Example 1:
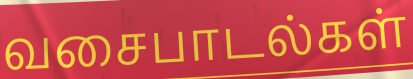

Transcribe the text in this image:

வசைபாடல்கள்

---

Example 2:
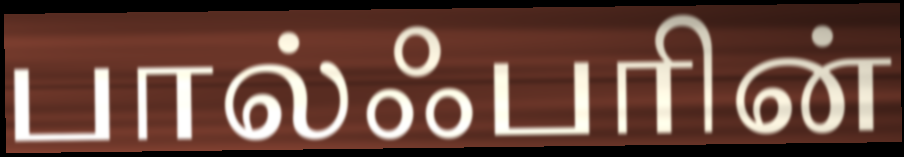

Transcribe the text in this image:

பால்ஃபரின்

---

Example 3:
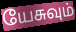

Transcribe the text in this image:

யேசுவும்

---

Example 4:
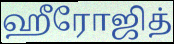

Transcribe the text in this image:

ஹீரோஜித்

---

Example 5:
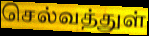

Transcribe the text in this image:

செல்வத்துள்